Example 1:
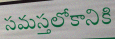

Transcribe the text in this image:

సమస్తలోకానికి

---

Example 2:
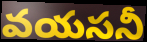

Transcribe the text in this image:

వయసనీ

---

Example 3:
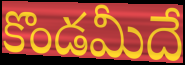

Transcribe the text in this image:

కొండమీదే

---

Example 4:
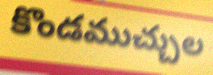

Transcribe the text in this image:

కొండముచ్చుల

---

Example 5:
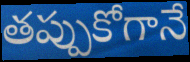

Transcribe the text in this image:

తప్పుకోగానే